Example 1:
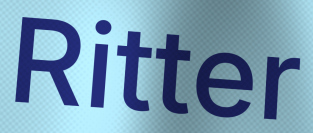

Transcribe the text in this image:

Ritter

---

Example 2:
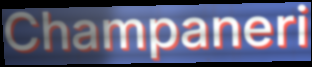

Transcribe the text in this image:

Champaneri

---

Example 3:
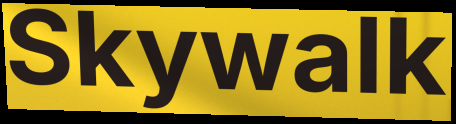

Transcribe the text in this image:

Skywalk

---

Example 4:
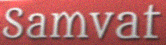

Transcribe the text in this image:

Samvat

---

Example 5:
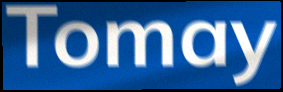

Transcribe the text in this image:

Tomay